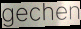
gechen